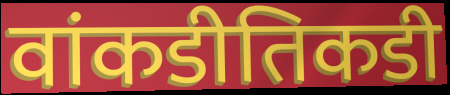
वांकडीतिकडी